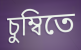
চুম্বিতে